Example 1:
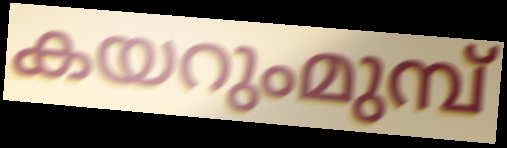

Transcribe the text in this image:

കയറുംമുമ്പ്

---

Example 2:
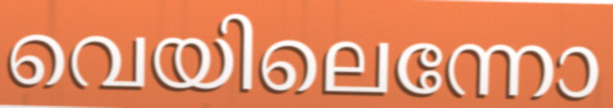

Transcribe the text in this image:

വെയിലെന്നോ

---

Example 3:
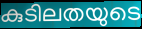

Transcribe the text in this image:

കുടിലതയുടെ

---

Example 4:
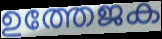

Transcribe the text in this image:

ഉത്തേജക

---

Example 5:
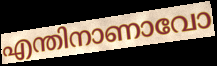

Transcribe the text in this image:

എന്തിനാണാവോ